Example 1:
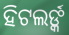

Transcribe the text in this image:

ହିଟଲର୍ଙ୍କ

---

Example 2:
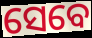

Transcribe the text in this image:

ସେବେ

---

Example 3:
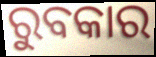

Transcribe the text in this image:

ରୁବକାର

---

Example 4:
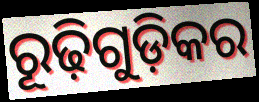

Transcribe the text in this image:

ରୂଢ଼ିଗୁଡ଼ିକର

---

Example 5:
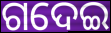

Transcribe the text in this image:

ଗଦେଇ